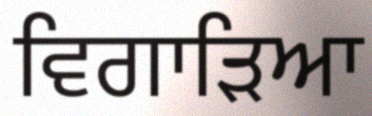
ਵਿਗਾੜਿਆ